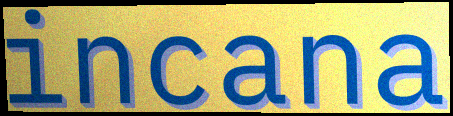
incana